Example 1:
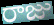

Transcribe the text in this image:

రాజు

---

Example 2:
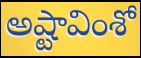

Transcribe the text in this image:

అష్టావింశో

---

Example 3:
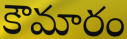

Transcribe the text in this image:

కౌమారం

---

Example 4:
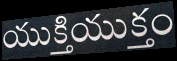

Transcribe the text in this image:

యుక్తియుక్తం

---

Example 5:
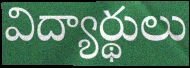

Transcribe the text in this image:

విద్యార్థులు